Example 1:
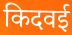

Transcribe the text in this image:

किदवई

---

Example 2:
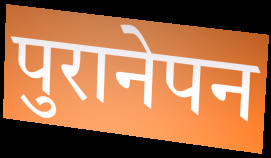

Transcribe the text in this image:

पुरानेपन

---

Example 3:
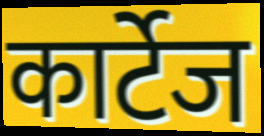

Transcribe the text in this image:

कार्टेज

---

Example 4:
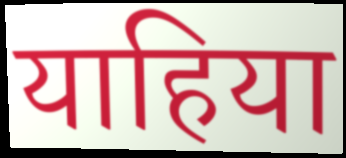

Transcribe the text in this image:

याहिया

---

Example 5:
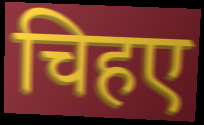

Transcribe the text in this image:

चिहए